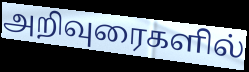
அறிவுரைகளில்